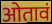
ओतावं